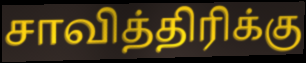
சாவித்திரிக்கு